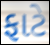
ફાટે